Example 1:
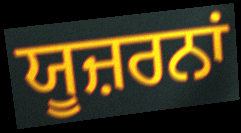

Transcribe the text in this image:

ਯੂਜ਼ਰਨਾਂ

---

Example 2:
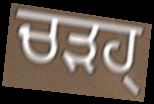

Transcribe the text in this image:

ਚੜਹ੍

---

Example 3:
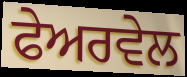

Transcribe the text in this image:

ਫੇਅਰਵੇਲ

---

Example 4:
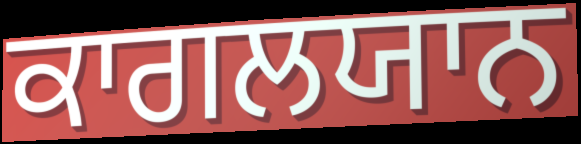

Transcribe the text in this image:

ਕਾਗਲਯਾਨ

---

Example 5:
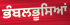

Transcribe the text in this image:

ਭੰਬਲਭੂਸਿਆਂ